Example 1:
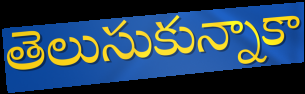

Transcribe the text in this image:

తెలుసుకున్నాకా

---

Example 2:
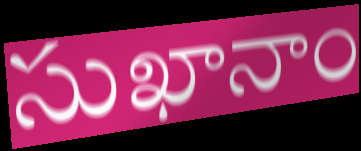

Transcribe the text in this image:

సుఖానాం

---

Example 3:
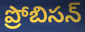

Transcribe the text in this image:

ప్రోబిసన్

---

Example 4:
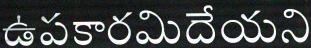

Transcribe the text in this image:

ఉపకారమిదేయని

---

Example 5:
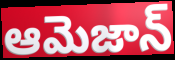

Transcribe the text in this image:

ఆమెజాన్